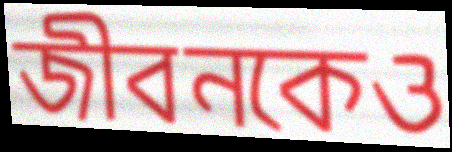
জীবনকেও